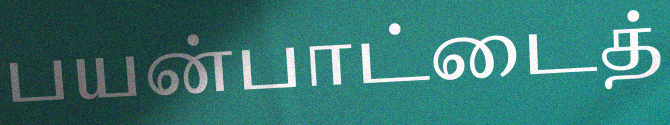
பயன்பாட்டைத்